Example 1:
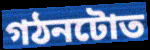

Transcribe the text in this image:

গঠনটোত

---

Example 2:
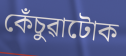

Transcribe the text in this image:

কেঁচুৱাটোক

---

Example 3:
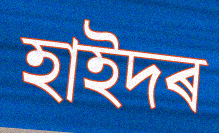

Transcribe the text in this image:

হাইদৰ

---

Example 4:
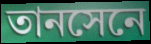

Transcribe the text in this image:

তানসেনে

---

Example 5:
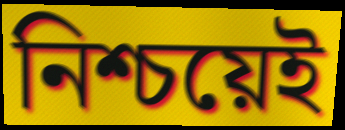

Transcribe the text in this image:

নিশ্চয়েই